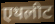
एथलीट